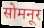
सोमनूर